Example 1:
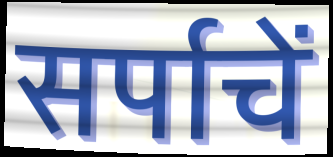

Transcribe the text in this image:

सर्पाचें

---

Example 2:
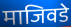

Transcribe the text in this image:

माजिवडे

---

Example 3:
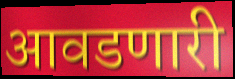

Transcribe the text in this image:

आवडणारी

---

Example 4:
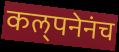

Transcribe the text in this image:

कल्पनेनंच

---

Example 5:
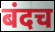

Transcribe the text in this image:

बंदच